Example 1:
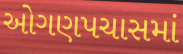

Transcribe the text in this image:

ઓગણપચાસમાં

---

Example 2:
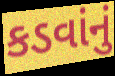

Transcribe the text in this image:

કડવાંનું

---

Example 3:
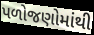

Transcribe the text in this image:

પળોજણોમાંથી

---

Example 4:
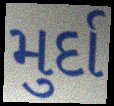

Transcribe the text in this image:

મુર્દા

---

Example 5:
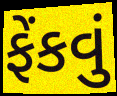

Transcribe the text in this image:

ફેંકવું